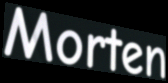
Morten